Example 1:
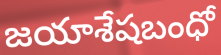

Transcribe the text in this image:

జయాశేషబంధో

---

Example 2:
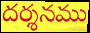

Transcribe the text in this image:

దర్శనము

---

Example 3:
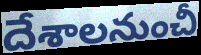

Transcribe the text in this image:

దేశాలనుంచీ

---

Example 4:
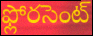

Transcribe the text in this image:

ఫ్లోరసెంట్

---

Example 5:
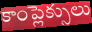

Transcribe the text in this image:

కాంప్లెక్సులు